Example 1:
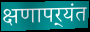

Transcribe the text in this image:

क्षणापर्यंत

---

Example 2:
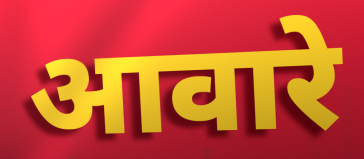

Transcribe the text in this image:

आवारे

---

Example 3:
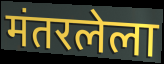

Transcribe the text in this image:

मंतरलेला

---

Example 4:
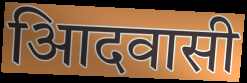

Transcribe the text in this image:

आिदवासी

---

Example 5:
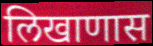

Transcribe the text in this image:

लिखाणास